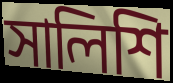
সালিশি